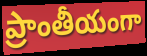
ప్రాంతీయంగా